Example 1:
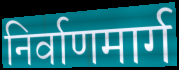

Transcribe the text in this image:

निर्वाणमार्ग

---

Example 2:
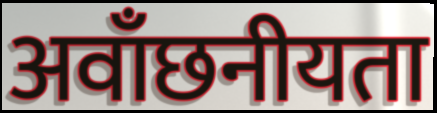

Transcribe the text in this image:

अवाँछनीयता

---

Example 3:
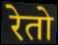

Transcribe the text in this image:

रेतो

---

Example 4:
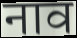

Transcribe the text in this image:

नाव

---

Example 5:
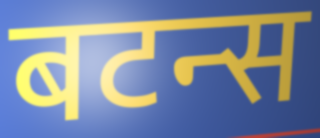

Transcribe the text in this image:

बटन्स